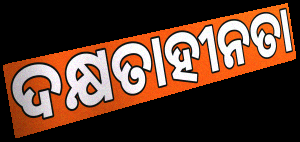
ଦକ୍ଷତାହୀନତା